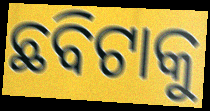
ଛବିଟାକୁ